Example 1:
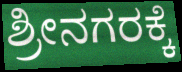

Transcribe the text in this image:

ಶ್ರೀನಗರಕ್ಕೆ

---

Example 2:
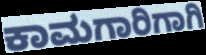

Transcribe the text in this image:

ಕಾಮಗಾರಿಗಾಗಿ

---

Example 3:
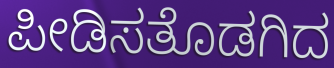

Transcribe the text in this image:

ಪೀಡಿಸತೊಡಗಿದ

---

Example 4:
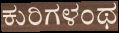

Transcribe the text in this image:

ಕುರಿಗಳಂಥ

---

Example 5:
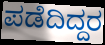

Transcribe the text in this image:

ಪಡೆದಿದ್ದರ